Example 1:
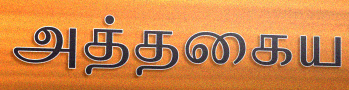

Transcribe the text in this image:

அத்தகைய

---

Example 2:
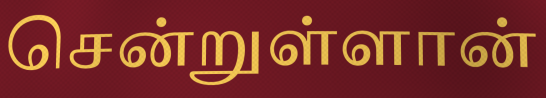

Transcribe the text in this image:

சென்றுள்ளான்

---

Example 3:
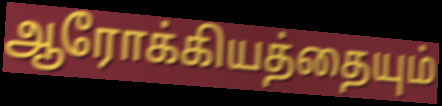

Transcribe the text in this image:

ஆரோக்கியத்தையும்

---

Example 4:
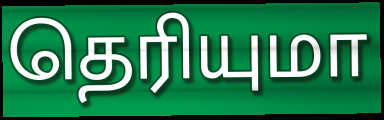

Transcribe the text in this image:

தெரியுமா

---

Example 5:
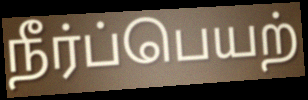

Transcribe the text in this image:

நீர்ப்பெயற்